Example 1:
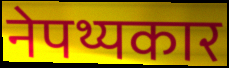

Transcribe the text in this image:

नेपथ्यकार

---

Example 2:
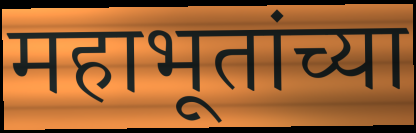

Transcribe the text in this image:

महाभूतांच्या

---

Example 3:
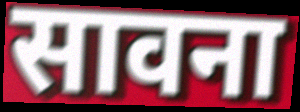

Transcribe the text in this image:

सावना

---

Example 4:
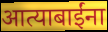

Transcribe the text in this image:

आत्याबाईंना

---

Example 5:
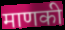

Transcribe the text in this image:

माणकी